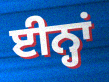
ਈਨ੍ਹਾਂ